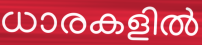
ധാരകളിൽ